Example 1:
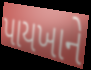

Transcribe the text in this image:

પાયખાને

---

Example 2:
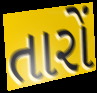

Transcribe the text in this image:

તારોં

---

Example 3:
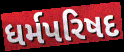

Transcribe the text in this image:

ધર્મપરિષદ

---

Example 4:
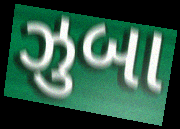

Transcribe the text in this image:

ઝુબા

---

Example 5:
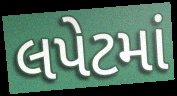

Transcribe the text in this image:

લપેટમાં